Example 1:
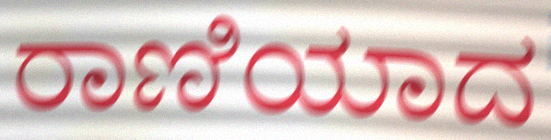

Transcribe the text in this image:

ರಾಣಿಯಾದ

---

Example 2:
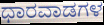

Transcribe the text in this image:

ಧಾರವಾಡಗಳ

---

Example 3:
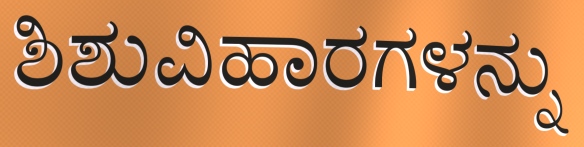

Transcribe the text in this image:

ಶಿಶುವಿಹಾರಗಳನ್ನು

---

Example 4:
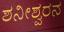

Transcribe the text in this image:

ಶನೀಶ್ವರನ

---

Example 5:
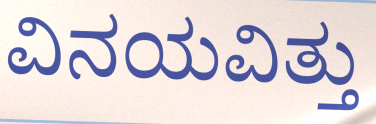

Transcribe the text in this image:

ವಿನಯವಿತ್ತು